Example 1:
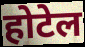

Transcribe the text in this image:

होटेल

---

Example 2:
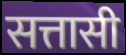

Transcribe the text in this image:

सत्तासी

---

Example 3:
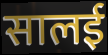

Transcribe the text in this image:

सालई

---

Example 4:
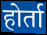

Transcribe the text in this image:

होर्ता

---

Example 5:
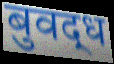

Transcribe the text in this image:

बुवद्ध